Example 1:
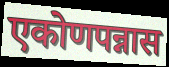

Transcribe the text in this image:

एकोणपन्नास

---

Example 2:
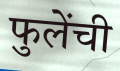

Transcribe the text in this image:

फुलेंची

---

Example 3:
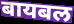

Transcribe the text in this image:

बायबल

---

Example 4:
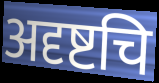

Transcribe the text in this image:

अदृष्टचि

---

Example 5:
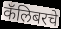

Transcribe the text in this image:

कॅलिबरचे